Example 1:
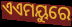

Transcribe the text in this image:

ଏଏମୟୁରେ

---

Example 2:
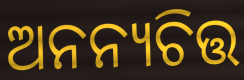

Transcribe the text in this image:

ଅନନ୍ୟଚିତ୍ତ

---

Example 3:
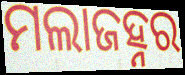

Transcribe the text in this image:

ମଲାଜହ୍ନର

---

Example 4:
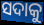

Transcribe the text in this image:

ସଦାକୁ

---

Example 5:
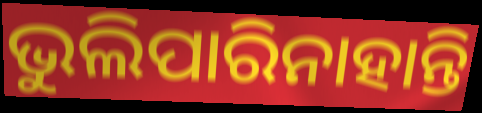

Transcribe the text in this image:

ଭୁଲିପାରିନାହାନ୍ତି